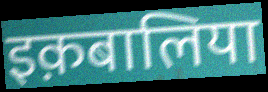
इक़बालिया